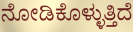
ನೋಡಿಕೊಳ್ಳುತ್ತಿದೆ